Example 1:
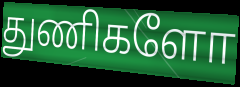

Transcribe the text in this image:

துணிகளோ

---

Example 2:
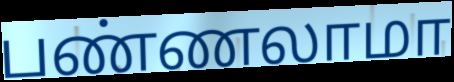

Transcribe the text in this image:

பண்ணலாமா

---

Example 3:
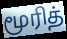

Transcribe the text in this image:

மூரித்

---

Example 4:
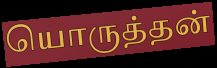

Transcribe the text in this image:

யொருத்தன்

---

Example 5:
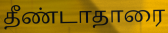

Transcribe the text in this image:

தீண்டாதாரை